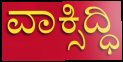
ವಾಕ್ಸಿದ್ಧಿ